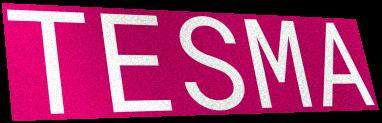
TESMA